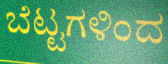
ಬೆಟ್ಟಗಳಿಂದ